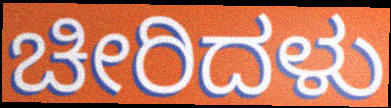
ಚೀರಿದಳು